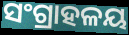
ସଂଗ୍ରାହଳୟ